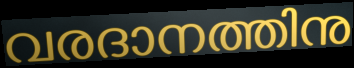
വരദാനത്തിനു